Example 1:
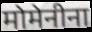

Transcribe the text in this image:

मोमेनीना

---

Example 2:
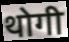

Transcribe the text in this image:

थोगी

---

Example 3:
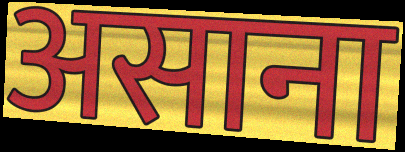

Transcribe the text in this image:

असाना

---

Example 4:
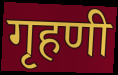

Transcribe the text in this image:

गृहणी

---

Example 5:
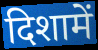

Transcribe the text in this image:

दिशामें